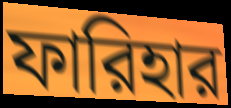
ফারিহার